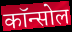
कॉन्सोल